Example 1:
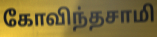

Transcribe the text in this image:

கோவிந்தசாமி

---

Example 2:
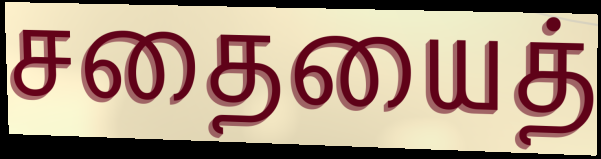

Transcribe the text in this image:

சதையைத்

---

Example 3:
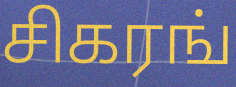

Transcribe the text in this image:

சிகரங்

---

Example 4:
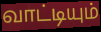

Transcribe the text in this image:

வாட்டியும்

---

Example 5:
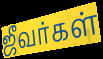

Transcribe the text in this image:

ஜீவர்கள்